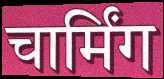
चार्मिंग